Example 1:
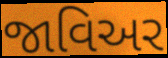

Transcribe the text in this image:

જાવિઅર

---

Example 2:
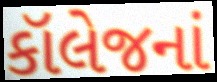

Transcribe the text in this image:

કૉલેજનાં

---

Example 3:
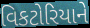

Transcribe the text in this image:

વિકટોરિયાને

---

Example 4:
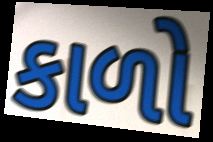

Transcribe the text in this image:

કાળો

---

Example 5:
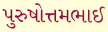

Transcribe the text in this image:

પુરુષોત્તમભાઈ